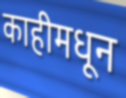
काहीमधून